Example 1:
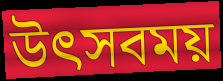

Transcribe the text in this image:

উৎসবময়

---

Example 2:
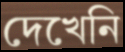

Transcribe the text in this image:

দেখেনি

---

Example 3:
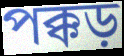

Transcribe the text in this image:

পক্কড়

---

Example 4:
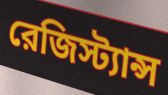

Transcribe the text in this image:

রেজিস্ট্যান্স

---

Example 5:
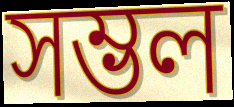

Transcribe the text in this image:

সম্ভল